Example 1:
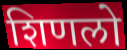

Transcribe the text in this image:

शिणलो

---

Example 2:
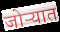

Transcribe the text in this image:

जोऱ्यात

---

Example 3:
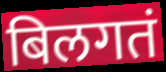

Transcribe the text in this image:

बिलगतं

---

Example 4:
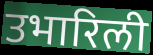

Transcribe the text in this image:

उभारिली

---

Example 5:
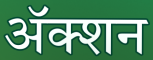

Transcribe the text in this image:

ॲक्शन